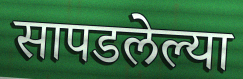
सापडलेल्‍या